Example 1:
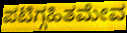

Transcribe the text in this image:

ಪಟಿಗ್ಗಹಿತಮೇವ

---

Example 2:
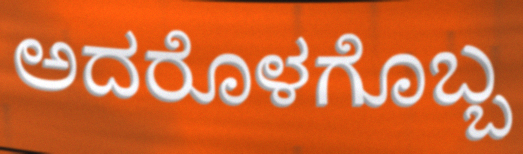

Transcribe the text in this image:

ಅದರೊಳಗೊಬ್ಬ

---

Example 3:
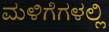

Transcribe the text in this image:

ಮಳಿಗೆಗಳಲ್ಲಿ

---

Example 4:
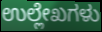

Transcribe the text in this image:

ಉಲ್ಲೇಖಗಳು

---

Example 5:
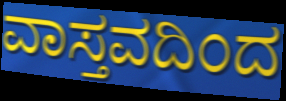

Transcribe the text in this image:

ವಾಸ್ತವದಿಂದ